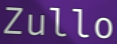
Zullo